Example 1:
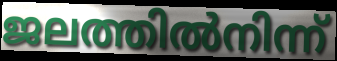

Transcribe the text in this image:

ജലത്തിൽനിന്ന്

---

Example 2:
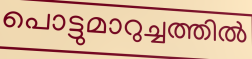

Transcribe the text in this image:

പൊട്ടുമാറുച്ചത്തിൽ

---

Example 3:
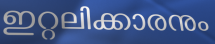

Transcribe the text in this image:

ഇറ്റലിക്കാരനും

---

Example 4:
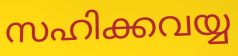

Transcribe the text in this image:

സഹിക്കവയ്യ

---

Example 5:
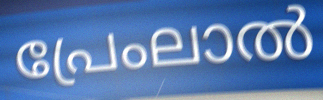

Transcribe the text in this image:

പ്രേംലാൽ